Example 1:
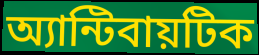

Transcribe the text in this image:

অ্যান্টিবায়টিক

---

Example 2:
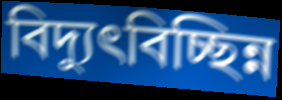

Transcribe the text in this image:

বিদ্যুৎবিচ্ছিন্ন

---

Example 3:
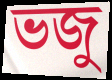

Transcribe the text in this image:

ভজু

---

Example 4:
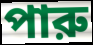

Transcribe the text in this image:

পারু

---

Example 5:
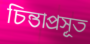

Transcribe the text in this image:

চিন্তাপ্রসূত